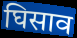
घिसाव